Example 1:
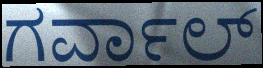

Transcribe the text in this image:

ಗರ್ವಾಲ್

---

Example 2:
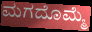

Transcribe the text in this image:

ಮಗದೊಮ್ಮೆ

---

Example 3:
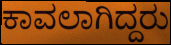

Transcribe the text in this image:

ಕಾವಲಾಗಿದ್ದರು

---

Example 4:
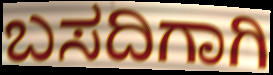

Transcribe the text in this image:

ಬಸದಿಗಾಗಿ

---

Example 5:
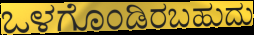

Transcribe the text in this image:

ಒಳಗೊಂಡಿರಬಹುದು